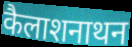
कैलाशनाथन